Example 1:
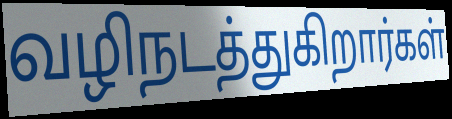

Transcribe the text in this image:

வழிநடத்துகிறார்கள்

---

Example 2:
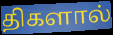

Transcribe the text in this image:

திகளால்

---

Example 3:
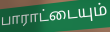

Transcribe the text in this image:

பாராட்டையும்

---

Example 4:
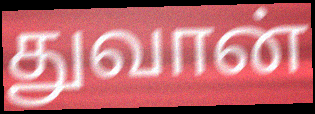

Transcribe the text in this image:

துவான்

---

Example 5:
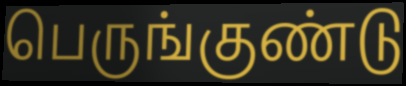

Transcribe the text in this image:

பெருங்குண்டு